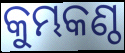
କୁମ୍ଭକଣ୍ଠ